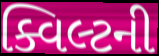
ક્વિલ્ટની